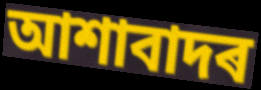
আশাবাদৰ